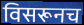
विसरूनच